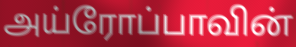
அய்ரோப்பாவின்